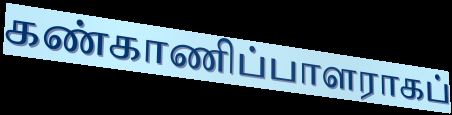
கண்காணிப்பாளராகப்